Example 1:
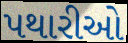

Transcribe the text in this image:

પથારીઓ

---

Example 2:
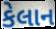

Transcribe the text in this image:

કેલાન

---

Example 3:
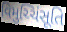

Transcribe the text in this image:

વિમુચ્ચિંસૂતિ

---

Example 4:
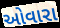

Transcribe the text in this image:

ઓવારા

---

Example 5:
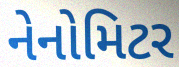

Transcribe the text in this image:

નેનોમિટર